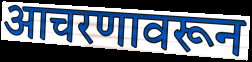
आचरणावरून